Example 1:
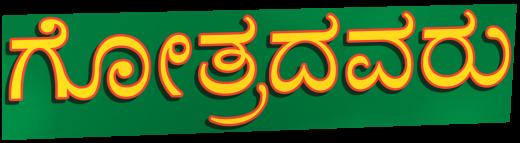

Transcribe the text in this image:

ಗೋತ್ರದವರು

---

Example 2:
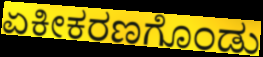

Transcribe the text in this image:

ಏಕೀಕರಣಗೊಂಡು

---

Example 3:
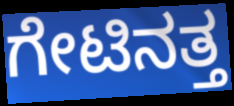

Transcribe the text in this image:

ಗೇಟಿನತ್ತ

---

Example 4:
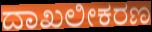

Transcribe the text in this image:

ದಾಖಲೀಕರಣ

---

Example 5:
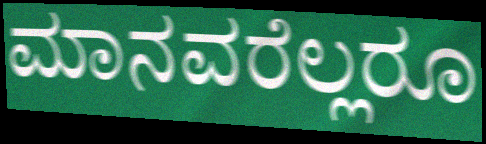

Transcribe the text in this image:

ಮಾನವರೆಲ್ಲರೂ